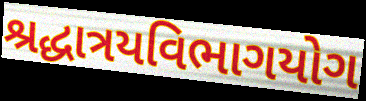
શ્રદ્ધાત્રયવિભાગયોગ